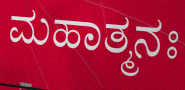
ಮಹಾತ್ಮನಃ